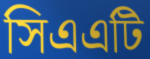
সিএএটি